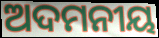
ଅଦମନୀୟ